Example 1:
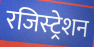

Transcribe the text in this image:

रजिस्‍ट्रेशन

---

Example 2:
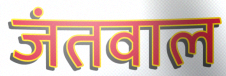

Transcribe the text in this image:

जंतवाल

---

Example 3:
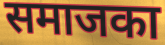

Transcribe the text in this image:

समाजका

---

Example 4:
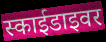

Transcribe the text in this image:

स्काईडाइवर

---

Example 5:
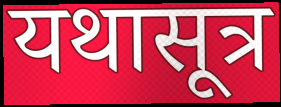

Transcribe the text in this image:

यथासूत्र